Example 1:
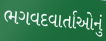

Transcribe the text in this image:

ભગવદવાર્તાઓનું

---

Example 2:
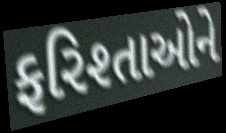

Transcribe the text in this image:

ફરિશ્તાઓને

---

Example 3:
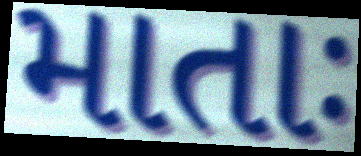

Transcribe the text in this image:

માતાઃ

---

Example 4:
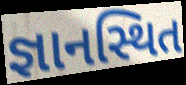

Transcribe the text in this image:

જ્ઞાનસ્થિત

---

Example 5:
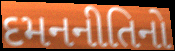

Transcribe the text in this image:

દમનનીતિનો